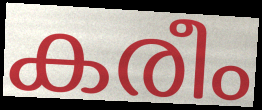
കരീം